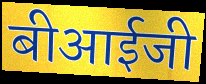
बीआईजी